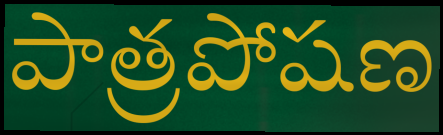
పాత్రపోషణ